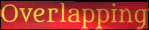
Overlapping